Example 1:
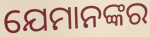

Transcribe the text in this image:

ଯେମାନଙ୍କର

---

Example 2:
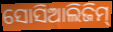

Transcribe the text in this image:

ସୋସିଆଲିଜିମ୍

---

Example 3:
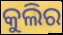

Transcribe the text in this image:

କୁଲିର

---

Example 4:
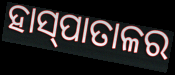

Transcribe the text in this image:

ହାସ୍‍ପାତାଳର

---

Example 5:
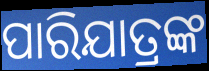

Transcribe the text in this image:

ପାରିଯାତ୍ରଙ୍କ